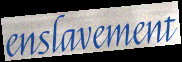
enslavement